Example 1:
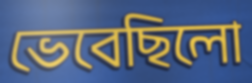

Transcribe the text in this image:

ভেবেছিলো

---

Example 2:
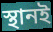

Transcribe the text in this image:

স্থানই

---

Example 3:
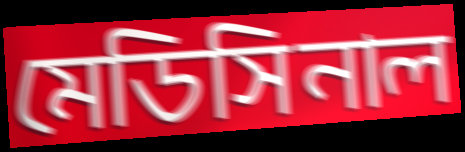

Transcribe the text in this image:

মেডিসিনাল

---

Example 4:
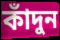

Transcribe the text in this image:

কাঁদুন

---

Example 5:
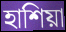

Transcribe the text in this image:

হাশিয়া